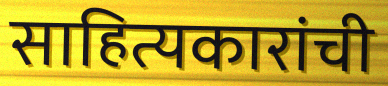
साहित्यकारांची